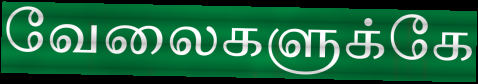
வேலைகளுக்கே